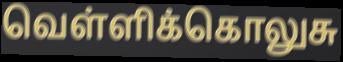
வெள்ளிக்கொலுசு